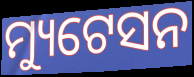
ମ୍ୟୁଟେସନ